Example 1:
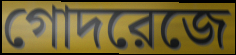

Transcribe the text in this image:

গোদরেজে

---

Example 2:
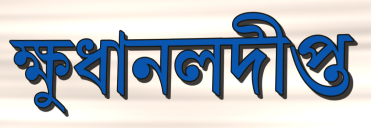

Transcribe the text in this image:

ক্ষুধানলদীপ্ত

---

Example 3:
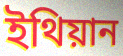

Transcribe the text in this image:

ইথিয়ান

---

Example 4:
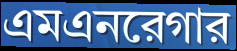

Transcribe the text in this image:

এমএনরেগার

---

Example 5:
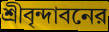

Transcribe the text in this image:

শ্রীবৃন্দাবনের